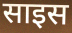
साइस